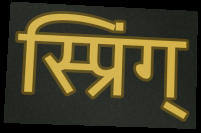
स्प्रिंग्